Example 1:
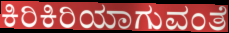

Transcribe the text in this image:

ಕಿರಿಕಿರಿಯಾಗುವಂತೆ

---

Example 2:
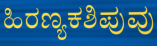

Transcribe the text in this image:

ಹಿರಣ್ಯಕಶಿಪುವು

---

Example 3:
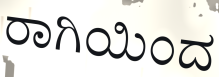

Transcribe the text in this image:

ರಾಗಿಯಿಂದ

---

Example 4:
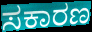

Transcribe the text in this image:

ಸಕಾರಣ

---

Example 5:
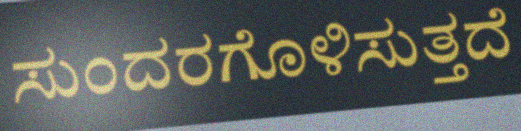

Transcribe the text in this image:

ಸುಂದರಗೊಳಿಸುತ್ತದೆ